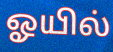
ஓயில்